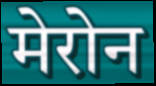
मेरोन